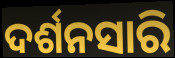
ଦର୍ଶନସାରି